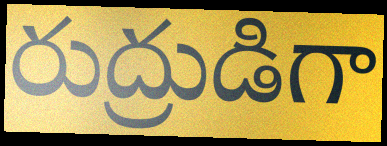
రుద్రుడిగా